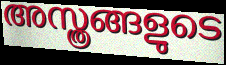
അസ്ത്രങ്ങളുടെ